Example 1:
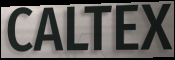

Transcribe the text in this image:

CALTEX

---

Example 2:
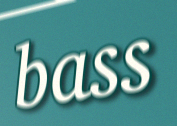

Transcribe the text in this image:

bass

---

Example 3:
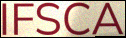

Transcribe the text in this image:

IFSCA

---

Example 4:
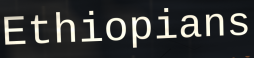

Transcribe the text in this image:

Ethiopians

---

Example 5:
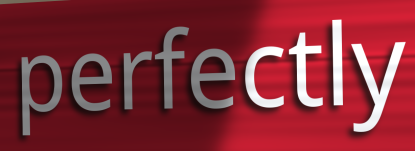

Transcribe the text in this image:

perfectly